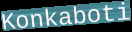
Konkaboti